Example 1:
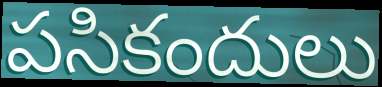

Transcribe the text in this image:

పసికందులు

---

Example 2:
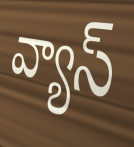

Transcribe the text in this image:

వ్యాస్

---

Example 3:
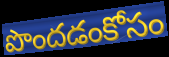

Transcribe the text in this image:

పొందడంకోసం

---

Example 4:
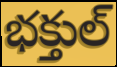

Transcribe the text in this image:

భక్తుల్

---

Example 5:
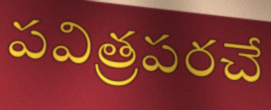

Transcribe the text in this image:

పవిత్రపరచే